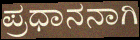
ಪ್ರಧಾನನಾಗಿ